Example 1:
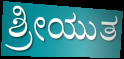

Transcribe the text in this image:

ಶ್ರೀಯುತ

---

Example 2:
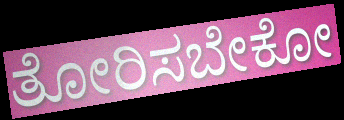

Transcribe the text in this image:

ತೋರಿಸಬೇಕೋ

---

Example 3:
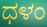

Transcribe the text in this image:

ಧಳಂ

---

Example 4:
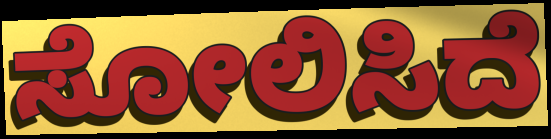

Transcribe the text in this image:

ಸೋಲಿಸಿದೆ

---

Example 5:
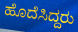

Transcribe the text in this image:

ಹೊದೆಸಿದ್ದರು